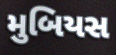
મુબિયસ